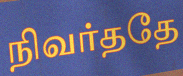
நிவர்ததே